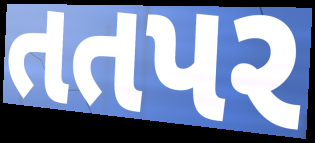
તતપર